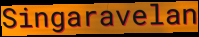
Singaravelan